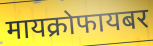
मायक्रोफायबर